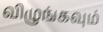
விழுங்கவும்